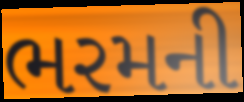
ભરમની